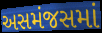
અસમંજસમાં